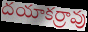
దయాకర్రావు